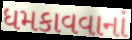
ધમકાવવાનાં